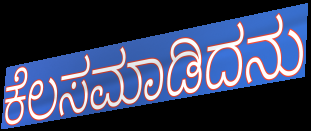
ಕೆಲಸಮಾಡಿದನು